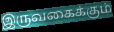
இருவகைக்கும்